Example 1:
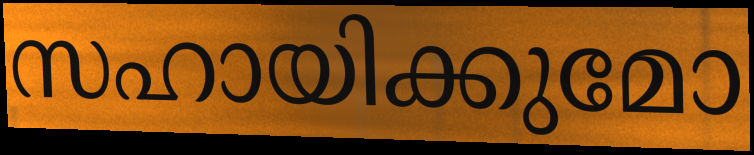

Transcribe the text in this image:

സഹായിക്കുമോ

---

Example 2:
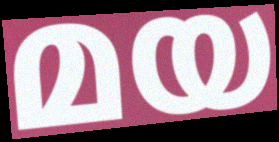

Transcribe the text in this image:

മയ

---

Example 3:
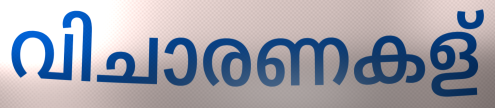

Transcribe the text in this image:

വിചാരണകള്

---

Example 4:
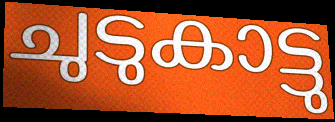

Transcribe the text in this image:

ചുടുകാട്ടു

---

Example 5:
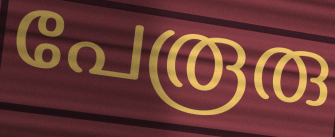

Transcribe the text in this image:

പേരൂരു